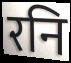
रनि